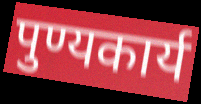
पुण्यकार्य